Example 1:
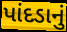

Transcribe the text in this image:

પાંદડાનું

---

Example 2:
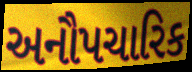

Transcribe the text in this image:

અનૌપચારિક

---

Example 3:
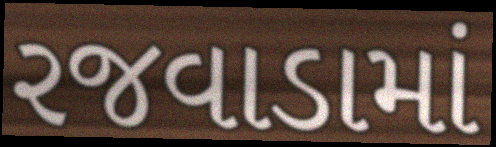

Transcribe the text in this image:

રજવાડામાં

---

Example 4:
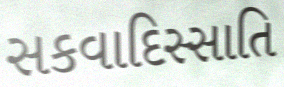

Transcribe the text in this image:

સકવાદિસ્સાતિ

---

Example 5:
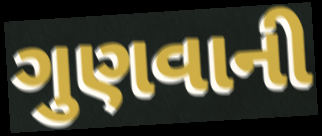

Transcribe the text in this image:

ગુણવાની